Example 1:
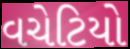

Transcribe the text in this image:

વચેટિયો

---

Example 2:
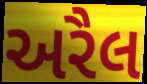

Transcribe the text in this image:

અરૈલ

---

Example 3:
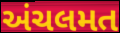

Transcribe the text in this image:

અંચલમત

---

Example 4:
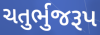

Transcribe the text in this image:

ચતુર્ભુજરૂપ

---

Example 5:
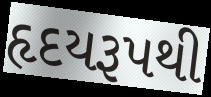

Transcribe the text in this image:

હૃદયરૂપથી